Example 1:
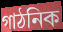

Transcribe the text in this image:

গাঠনিক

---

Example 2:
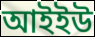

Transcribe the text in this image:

আইইউ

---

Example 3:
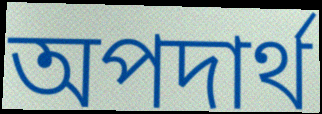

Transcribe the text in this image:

অপদার্থ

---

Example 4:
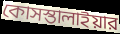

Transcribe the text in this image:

কোসস্তালাইয়ার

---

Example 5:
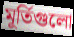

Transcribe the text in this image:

মূর্তিগুলো